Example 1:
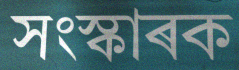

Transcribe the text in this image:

সংস্কাৰক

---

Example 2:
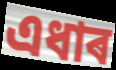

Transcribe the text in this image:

এধাৰ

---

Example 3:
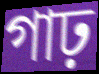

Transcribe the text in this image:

গাঢ়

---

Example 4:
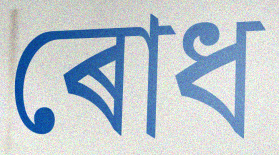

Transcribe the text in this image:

ৰোধ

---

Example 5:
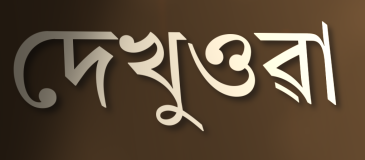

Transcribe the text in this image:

দেখুওৱা